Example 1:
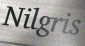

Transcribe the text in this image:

Nilgris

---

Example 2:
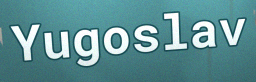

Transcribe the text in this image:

Yugoslav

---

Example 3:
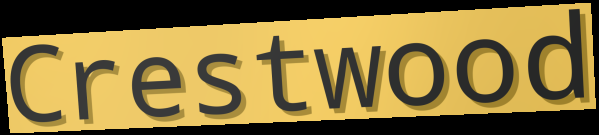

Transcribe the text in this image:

Crestwood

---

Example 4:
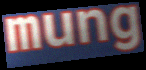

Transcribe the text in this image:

mung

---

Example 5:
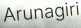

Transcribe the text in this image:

Arunagiri